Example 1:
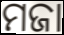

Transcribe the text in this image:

ମଜା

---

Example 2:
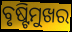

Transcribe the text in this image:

ବୃଷ୍ଟିମୁଖର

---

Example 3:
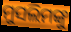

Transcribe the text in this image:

ମୁସଲିମଙ୍କୁ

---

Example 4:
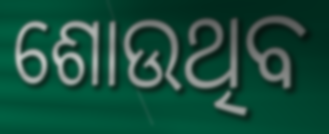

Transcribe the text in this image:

ଶୋଉଥିବ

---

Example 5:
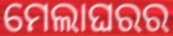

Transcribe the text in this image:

ମେଲାଘରର